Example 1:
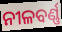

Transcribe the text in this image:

ନୀଳବର୍ଣ୍ଣ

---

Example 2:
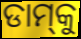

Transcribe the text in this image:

ଡାମ୍‍କୁ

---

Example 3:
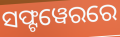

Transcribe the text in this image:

ସଫ୍ଟୱେରରେ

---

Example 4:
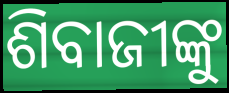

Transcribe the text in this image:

ଶିବାଜୀଙ୍କୁ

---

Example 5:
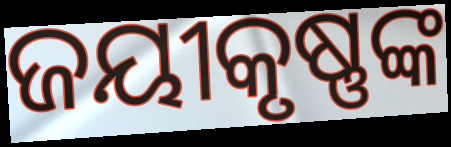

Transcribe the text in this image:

ଜୟୀକୃଷ୍ଣଙ୍କ